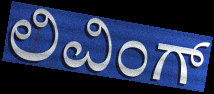
ಲಿವಿಂಗ್